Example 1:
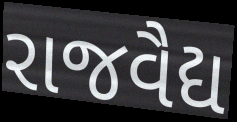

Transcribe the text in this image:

રાજવૈદ્ય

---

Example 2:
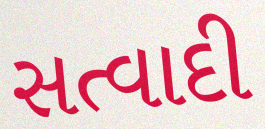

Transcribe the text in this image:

સત્વાદી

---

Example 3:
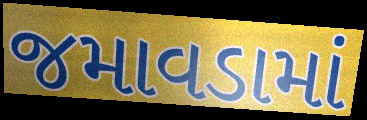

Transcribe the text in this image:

જમાવડામાં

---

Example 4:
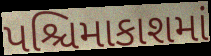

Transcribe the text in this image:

પશ્ચિમાકાશમાં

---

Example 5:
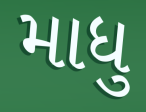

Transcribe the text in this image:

માધુ